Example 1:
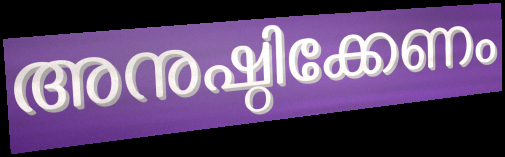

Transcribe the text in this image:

അനുഷ്ഠിക്കേണം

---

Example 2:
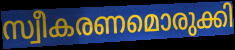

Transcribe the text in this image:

സ്വീകരണമൊരുക്കി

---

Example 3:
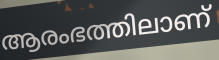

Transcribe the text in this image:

ആരംഭത്തിലാണ്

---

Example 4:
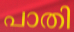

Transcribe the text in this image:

പാതി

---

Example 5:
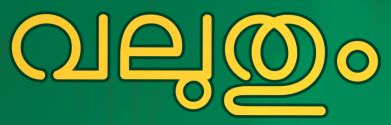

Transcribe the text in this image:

വലുതും